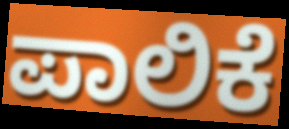
ಪಾಲಿಕೆ